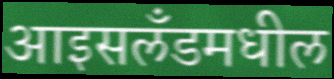
आइसलँडमधील